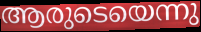
ആരുടെയെന്നു